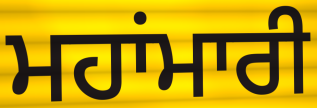
ਮਹਾਂਮਾਰੀ